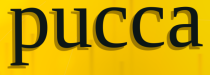
pucca